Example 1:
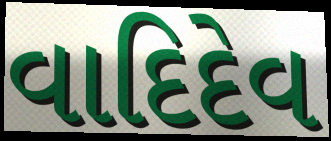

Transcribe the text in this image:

વાદિદેવ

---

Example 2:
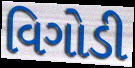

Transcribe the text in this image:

વિગોડી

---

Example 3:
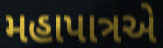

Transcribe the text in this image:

મહાપાત્રએ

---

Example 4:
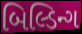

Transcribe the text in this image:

બિલ્ડિન્ગ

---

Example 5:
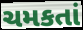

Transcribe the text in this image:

ચમકતાં